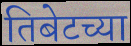
तिबेटच्या